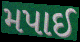
મપાઈ